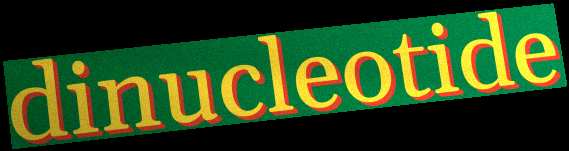
dinucleotide